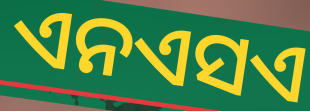
ଏନଏସଏ